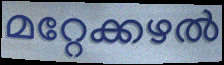
മറ്റേക്കഴൽ